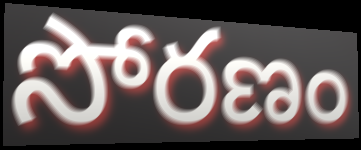
సోరణం